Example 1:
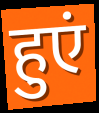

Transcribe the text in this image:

हुएं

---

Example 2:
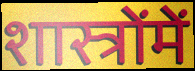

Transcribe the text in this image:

शास्त्रोंमें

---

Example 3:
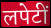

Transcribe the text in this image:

लपेटीं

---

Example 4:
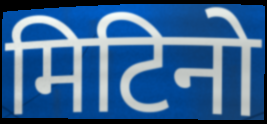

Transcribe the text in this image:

मिटिनो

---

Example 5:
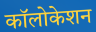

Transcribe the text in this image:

कॉलोकेशन